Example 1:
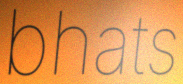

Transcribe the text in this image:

bhats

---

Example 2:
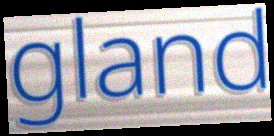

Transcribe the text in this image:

gland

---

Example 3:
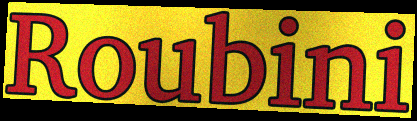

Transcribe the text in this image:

Roubini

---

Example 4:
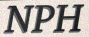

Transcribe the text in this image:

NPH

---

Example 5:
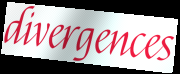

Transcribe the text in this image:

divergences